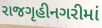
રાજગૃહીનગરીમાં